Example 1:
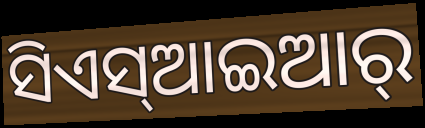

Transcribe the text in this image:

ସିଏସ୍ଆଇଆର୍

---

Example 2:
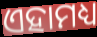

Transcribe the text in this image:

ଏହାମଧ୍ୟ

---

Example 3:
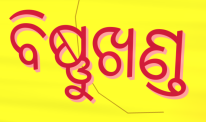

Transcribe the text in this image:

ବିଷ୍ଣୁଖଣ୍ଡ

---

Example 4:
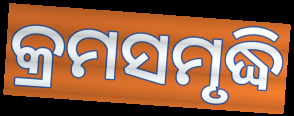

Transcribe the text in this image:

କ୍ରମସମୃଦ୍ଧି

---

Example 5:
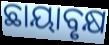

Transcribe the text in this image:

ଛାୟାବୃକ୍ଷ